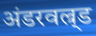
अंडरवल्र्ड